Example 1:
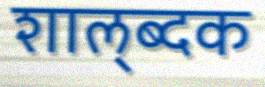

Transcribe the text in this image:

शाल्ब्दक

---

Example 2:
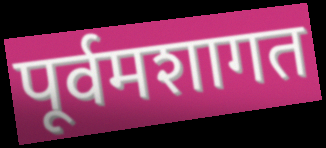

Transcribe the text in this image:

पूर्वमशागत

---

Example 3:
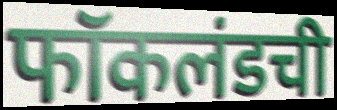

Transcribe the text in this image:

फॉकलंडची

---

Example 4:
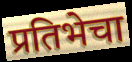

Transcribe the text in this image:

प्रतिभेचा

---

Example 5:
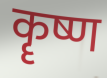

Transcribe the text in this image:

कॄष्ण